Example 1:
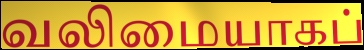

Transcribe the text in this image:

வலிமையாகப்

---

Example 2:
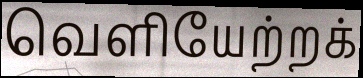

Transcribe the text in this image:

வெளியேற்றக்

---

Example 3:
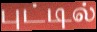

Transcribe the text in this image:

புட்டில்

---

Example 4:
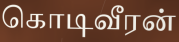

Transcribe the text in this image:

கொடிவீரன்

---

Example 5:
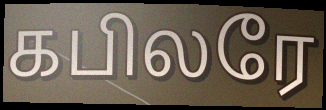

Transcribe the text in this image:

கபிலரே